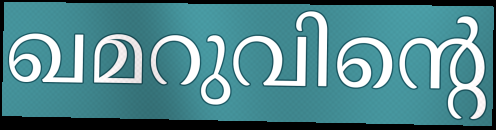
ഖമറുവിന്റെ